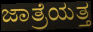
ಜಾತ್ರೆಯತ್ತ